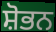
ਸ਼ੋਭਨ